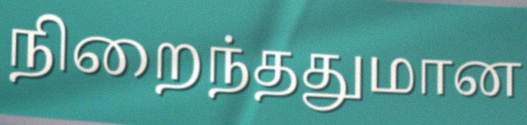
நிறைந்ததுமான